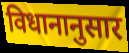
विधानानुसार